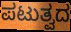
ಪಟುತ್ವದ